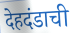
देहदंडाची